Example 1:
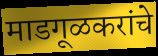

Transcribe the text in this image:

माडगूळकरांचे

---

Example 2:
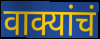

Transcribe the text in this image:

वाक्यांचं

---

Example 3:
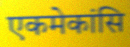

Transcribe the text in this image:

एकमेकांसि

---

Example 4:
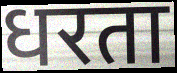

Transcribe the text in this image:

धरता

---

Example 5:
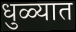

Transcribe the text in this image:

धुळ्यात